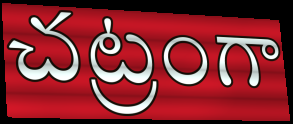
చట్రంగా